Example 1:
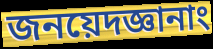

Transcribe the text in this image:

জনয়েদজ্ঞানাং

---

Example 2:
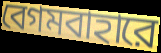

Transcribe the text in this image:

বেগমবাহারে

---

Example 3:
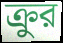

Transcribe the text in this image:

ক্রুর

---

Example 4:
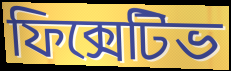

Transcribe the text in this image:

ফিক্সেটিভ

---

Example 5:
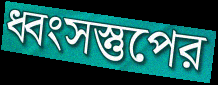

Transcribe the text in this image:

ধ্বংসস্তুপের